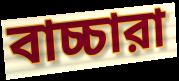
বাচ্চারা